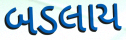
બડલાય